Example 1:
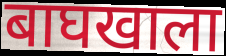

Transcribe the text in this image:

बाघखाला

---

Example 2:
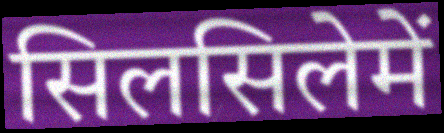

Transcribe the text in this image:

सिलसिलेमें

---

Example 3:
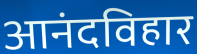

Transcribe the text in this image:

आनंदविहार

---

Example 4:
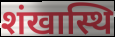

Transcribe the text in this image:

शंखास्थि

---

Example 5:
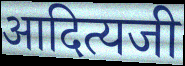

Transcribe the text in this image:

आदित्यजी